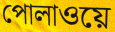
পোলাওয়ে